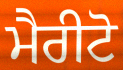
ਮੈਰੀਟੋ